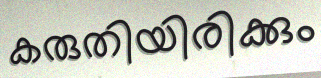
കരുതിയിരിക്കും